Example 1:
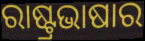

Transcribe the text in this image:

ରାଷ୍ଟ୍ରଭାଷାର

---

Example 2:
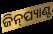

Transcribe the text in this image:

ଜିନ୍‍ପ୍ୟାଣ୍ଟ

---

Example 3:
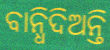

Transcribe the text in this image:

ବାନ୍ଧିଦିଅନ୍ତି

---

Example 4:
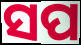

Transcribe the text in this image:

ସପ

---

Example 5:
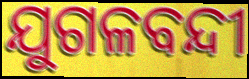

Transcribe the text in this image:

ଯୁଗଳବନ୍ଦୀ